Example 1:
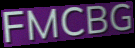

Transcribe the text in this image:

FMCBG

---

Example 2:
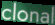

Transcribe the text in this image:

clonal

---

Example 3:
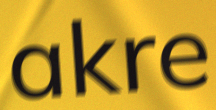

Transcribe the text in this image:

akre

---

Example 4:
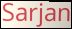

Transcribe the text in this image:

Sarjan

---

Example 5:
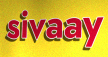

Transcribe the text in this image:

sivaay